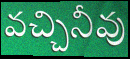
వచ్చినీవు